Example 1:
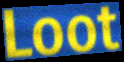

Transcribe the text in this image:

Loot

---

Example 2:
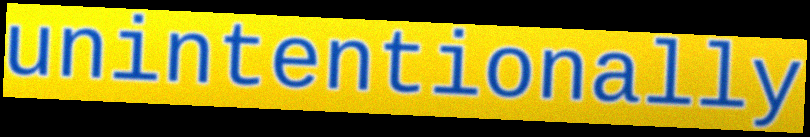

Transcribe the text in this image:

unintentionally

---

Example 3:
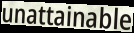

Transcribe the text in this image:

unattainable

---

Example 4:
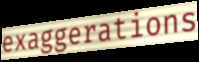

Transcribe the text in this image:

exaggerations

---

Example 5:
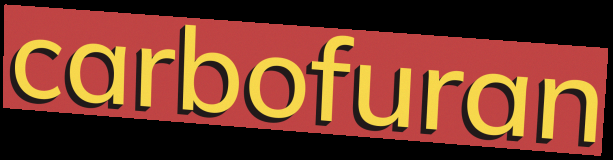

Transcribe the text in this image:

carbofuran